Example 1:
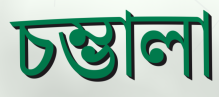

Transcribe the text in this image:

চম্ভালা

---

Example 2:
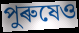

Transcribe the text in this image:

পুৰুষেও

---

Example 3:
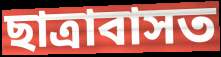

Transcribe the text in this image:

ছাত্ৰাবাসত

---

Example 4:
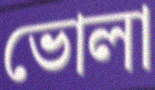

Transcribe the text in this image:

ভোলা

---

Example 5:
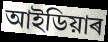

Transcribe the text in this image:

আইডিয়াৰ